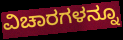
ವಿಚಾರಗಳನ್ನೂ